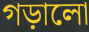
গড়ালো